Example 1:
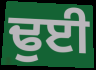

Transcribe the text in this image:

ਢੁਈ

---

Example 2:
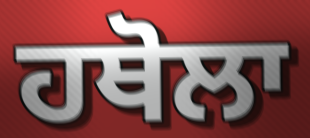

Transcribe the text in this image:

ਹਥੋਲਾ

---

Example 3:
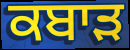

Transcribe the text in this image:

ਕਬਾੜ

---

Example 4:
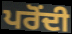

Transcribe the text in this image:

ਪਰੋਂਦੀ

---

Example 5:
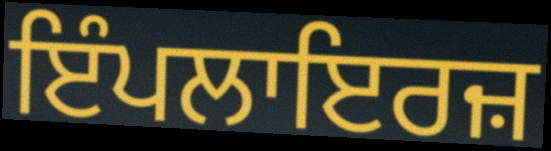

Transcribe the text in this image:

ਇੰਪਲਾਇਰਜ਼